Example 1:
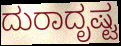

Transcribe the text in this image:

ದುರಾದೃಷ್ಟ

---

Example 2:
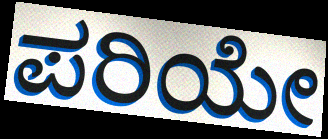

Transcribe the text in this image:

ಪರಿಯೇ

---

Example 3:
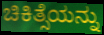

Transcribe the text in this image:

ಚಿಕಿತ್ಸೆಯನ್ನು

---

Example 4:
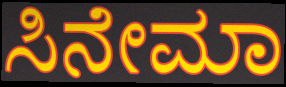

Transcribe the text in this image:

ಸಿನೇಮಾ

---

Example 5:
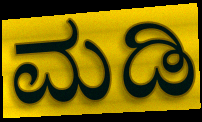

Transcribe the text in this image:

ಮಡಿ